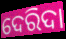
ଦେରିଦା